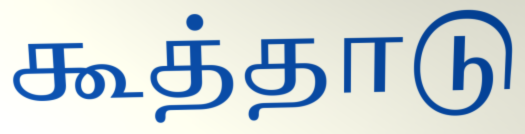
கூத்தாடு